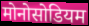
मोनोसोडियम